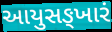
આયુસઙ્ખારં